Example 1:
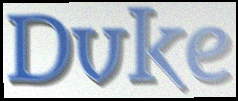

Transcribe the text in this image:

Duke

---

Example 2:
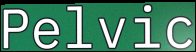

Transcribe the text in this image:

Pelvic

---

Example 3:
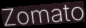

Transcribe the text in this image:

Zomato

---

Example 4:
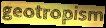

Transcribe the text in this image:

geotropism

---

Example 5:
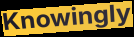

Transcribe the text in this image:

Knowingly